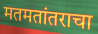
मतमतांतराचा